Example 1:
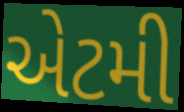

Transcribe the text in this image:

એટમી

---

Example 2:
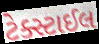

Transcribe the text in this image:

ટેક્સ્ટાઈલ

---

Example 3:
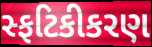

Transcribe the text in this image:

સ્ફટિકીકરણ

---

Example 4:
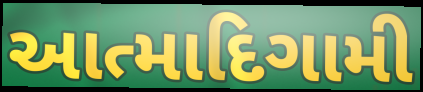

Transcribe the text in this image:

આત્માદિગામી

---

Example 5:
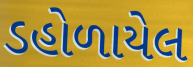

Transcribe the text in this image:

ડહોળાયેલ